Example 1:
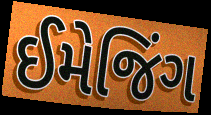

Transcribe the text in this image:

ઈમેજિંગ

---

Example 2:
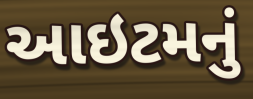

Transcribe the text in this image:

આઇટમનું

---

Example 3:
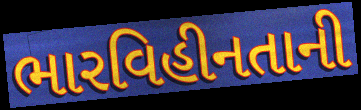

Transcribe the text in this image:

ભારવિહીનતાની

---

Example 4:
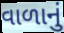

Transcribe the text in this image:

વાળાનું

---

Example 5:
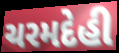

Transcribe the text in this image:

ચરમદેહી